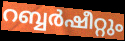
റബ്ബർഷീറ്റും